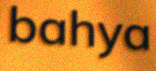
bahya